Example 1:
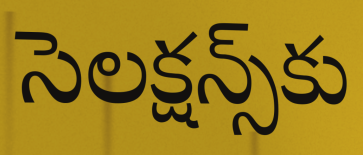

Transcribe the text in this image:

సెలక్షన్స్‌కు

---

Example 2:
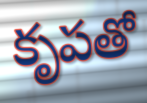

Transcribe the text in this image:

కృపతో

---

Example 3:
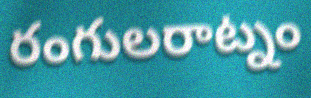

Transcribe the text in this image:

రంగులరాట్నం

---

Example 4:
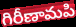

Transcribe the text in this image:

గిరీణామపి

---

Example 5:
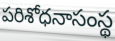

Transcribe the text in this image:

పరిశోధనాసంస్థ